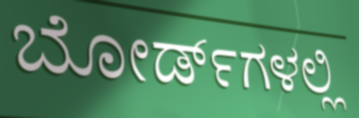
ಬೋರ್ಡ್‌ಗಳಲ್ಲಿ